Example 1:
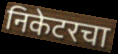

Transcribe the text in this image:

निकेटरचा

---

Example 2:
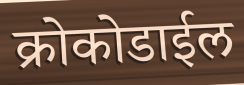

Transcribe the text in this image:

क्रोकोडाईल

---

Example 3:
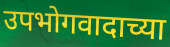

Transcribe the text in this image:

उपभोगवादाच्या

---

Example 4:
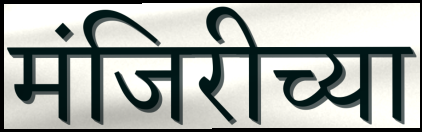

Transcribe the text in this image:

मंजिरीच्या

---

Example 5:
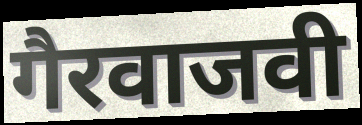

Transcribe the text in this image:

गैरवाजवी